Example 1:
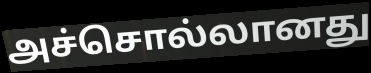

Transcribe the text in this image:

அச்சொல்லானது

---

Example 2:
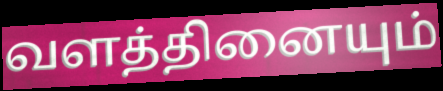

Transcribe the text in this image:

வளத்தினையும்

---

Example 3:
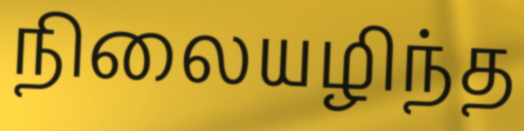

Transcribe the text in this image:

நிலையழிந்த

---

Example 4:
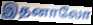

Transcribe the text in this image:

இதனாலோ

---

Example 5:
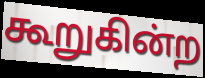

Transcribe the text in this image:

கூறுகின்ற